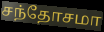
சந்தோசமா